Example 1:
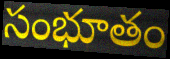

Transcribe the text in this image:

సంభూతం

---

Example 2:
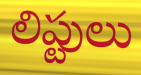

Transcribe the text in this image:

లిప్టులు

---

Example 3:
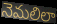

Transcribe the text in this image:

నెమలిలా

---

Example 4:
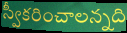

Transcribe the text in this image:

స్వీకరించాలన్నది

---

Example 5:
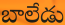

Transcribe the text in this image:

బాలేడు